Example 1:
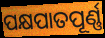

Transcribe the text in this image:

ପକ୍ଷପାତପୂର୍ଣ୍ଣ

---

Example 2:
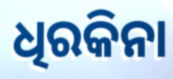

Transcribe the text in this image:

ଧିରକିନା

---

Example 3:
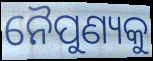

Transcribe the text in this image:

ନୈପୁଣ୍ୟକୁ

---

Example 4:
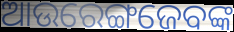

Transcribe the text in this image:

ଆଉରେଙ୍ଗଜେବଙ୍କ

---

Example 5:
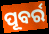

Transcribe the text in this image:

ପୂବର୍ର